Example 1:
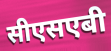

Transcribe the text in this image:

सीएसएबी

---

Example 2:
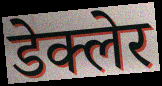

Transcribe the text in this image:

डेक्लेर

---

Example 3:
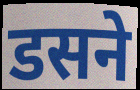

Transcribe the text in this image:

डसने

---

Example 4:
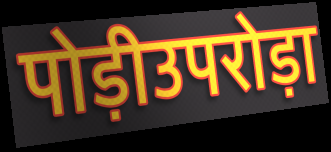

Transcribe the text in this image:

पोड़ीउपरोड़ा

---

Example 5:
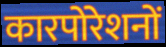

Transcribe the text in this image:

कारपोरेशनों